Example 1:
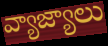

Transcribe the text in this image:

వ్యాజ్యాలు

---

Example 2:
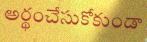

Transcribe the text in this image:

అర్థంచేసుకోకుండా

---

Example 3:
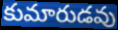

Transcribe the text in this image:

కుమారుడవు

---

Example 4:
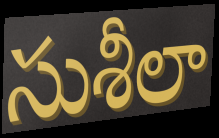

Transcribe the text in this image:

సుశీలా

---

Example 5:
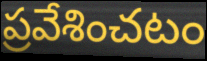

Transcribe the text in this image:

ప్రవేశించటం